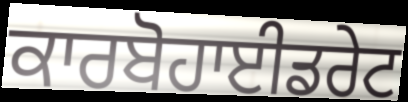
ਕਾਰਬੋਹਾਈਡਰੇਟ